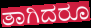
ತಾಗಿದರೂ